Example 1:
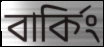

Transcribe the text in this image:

বার্কিং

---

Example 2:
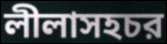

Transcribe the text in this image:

লীলাসহচর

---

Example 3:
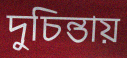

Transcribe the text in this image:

দুচিন্তায়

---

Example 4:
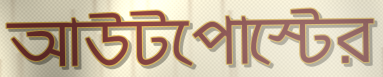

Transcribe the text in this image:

আউটপোস্টের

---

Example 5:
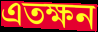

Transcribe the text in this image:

এতক্ষন